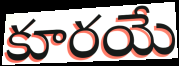
కూరయే